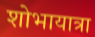
शोभायात्रा